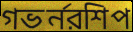
গভর্নরশিপ